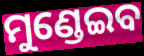
ମୁଣ୍ଡେଇବ